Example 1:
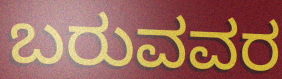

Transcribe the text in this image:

ಬರುವವರ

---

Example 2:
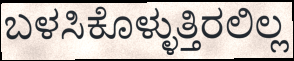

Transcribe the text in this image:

ಬಳಸಿಕೊಳ್ಳುತ್ತಿರಲಿಲ್ಲ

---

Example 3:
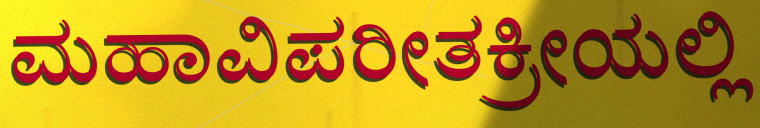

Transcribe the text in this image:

ಮಹಾವಿಪರೀತಕ್ರೀಯಲ್ಲಿ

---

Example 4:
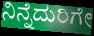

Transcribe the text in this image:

ನಿನ್ನೆದುರಿಗೇ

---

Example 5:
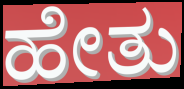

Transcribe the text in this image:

ಹೇತು